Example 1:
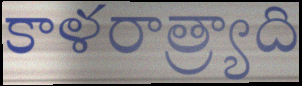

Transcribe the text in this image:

కాళరాత్ర్యాది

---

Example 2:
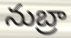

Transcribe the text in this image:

నుబ్రా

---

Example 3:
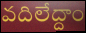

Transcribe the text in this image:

వదిలేద్దాం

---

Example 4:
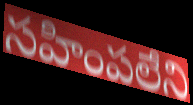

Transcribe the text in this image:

సహింపలేని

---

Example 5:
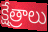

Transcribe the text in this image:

క్షేత్రాలు